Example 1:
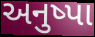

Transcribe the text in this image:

અનુષ્પા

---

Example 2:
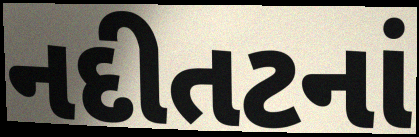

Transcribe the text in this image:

નદીતટનાં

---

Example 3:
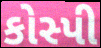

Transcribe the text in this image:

કોસ્પી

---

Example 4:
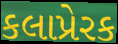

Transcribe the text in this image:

કલાપ્રેરક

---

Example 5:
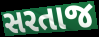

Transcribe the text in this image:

સરતાજ